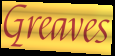
Greaves